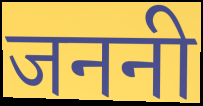
जननी